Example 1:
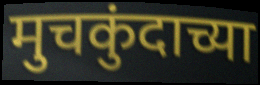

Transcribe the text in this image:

मुचकुंदाच्या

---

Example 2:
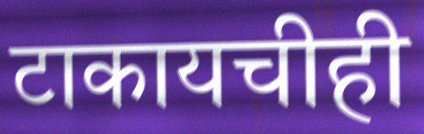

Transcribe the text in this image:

टाकायचीही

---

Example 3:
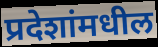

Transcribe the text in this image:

प्रदेशांमधील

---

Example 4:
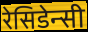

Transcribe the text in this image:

रेसिडेन्सी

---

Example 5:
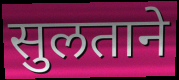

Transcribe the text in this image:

सुलताने